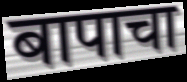
बापाचा